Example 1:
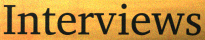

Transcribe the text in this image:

Interviews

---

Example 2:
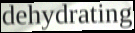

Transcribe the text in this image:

dehydrating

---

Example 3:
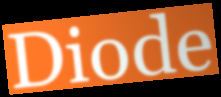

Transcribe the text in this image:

Diode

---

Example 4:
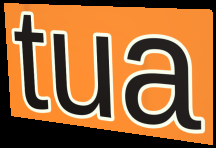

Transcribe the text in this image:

tua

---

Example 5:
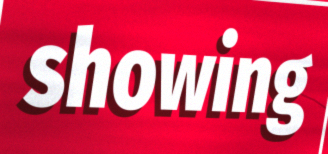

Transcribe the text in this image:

showing